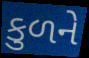
કુળને